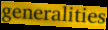
generalities